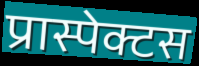
प्रास्पेक्टस